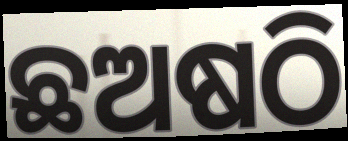
ଛଅଷଠି